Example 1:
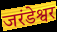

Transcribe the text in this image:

जरंडेश्वर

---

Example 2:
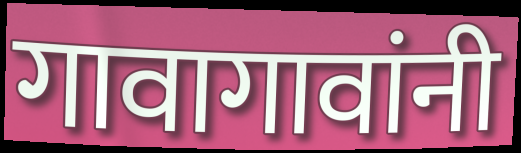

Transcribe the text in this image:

गावागावांनी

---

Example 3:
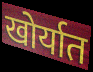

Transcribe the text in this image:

खोर्यात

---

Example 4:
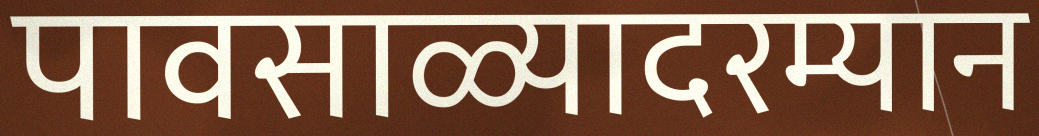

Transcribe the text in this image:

पावसाळ्यादरम्यान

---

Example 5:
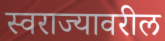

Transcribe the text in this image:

स्वराज्यावरील